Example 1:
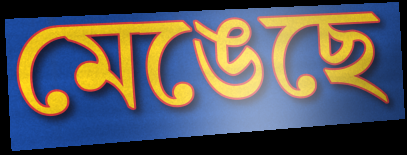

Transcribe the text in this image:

মেঙেছে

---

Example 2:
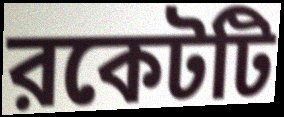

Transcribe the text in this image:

রকেটটি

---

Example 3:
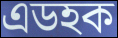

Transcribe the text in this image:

এডহক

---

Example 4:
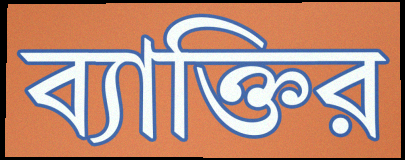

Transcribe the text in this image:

ব্যাক্তির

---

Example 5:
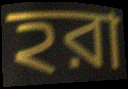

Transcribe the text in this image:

হরা